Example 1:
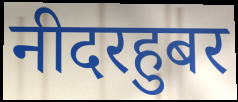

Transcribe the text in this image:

नीदरहुबर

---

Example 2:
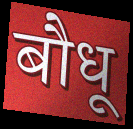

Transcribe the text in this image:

बौधू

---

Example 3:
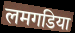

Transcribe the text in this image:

लमगडिया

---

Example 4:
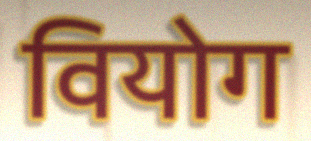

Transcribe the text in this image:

वियोग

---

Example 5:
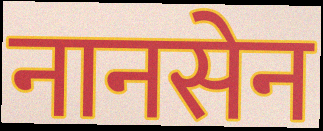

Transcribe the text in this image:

नानसेन